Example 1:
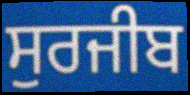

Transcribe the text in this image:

ਸੁਰਜੀਬ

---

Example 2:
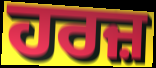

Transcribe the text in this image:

ਹਰਜ਼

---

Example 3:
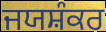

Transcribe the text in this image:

ਜਯਸ਼ੰਕਰ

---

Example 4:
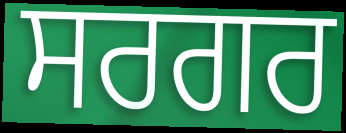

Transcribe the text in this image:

ਸਰਗਰ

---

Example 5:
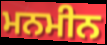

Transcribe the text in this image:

ਮਨਮੀਨ